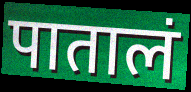
पातालं